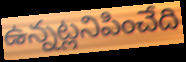
ఉన్నట్లనిపించేది